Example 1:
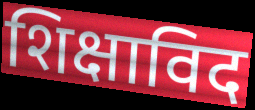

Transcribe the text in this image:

शिक्षाविद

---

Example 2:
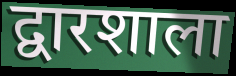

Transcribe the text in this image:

द्वारशाला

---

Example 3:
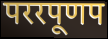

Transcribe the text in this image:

पररपूणप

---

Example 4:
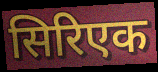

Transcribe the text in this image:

सिरिएक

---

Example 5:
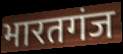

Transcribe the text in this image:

भारतगंज